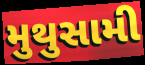
મુથુસામી